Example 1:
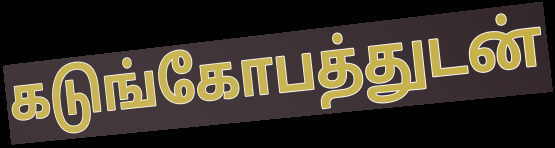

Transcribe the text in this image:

கடுங்கோபத்துடன்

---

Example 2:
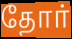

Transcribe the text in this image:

தோர்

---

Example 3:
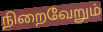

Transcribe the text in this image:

நிறைவேறும்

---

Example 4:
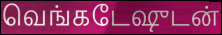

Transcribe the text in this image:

வெங்கடேஷுடன்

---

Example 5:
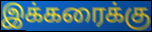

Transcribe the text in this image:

இக்கரைக்கு